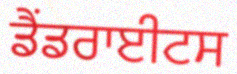
ਡੈਂਡਰਾਈਟਸ